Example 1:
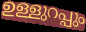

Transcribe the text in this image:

ഉള്ളുറപ്പും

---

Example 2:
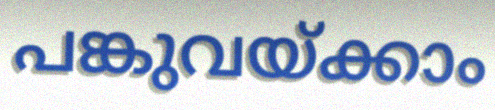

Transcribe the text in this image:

പങ്കുവയ്ക്കാം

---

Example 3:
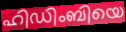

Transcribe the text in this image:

ഹിഡിംബിയെ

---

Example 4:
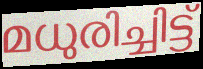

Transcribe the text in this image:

മധുരിച്ചിട്ട്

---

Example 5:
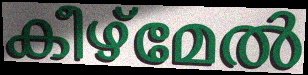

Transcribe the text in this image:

കീഴ്മേൽ